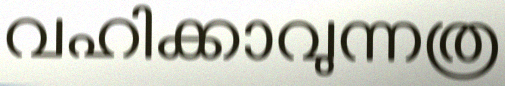
വഹിക്കാവുന്നത്ര